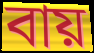
বায়